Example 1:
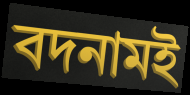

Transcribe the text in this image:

বদনামই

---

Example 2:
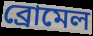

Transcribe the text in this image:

ব্রোমেল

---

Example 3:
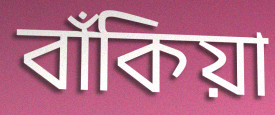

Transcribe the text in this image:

বাঁকিয়া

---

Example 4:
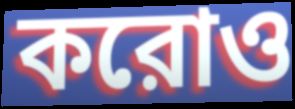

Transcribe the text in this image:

করোও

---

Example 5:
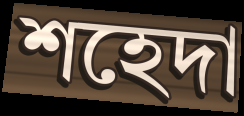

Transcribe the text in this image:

শহেদা